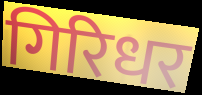
गिरिधर